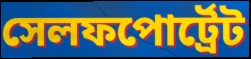
সেলফপোর্ট্রেট